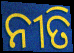
ନୀତି